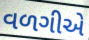
વળગીએ